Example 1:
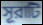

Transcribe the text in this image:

সূরাটি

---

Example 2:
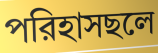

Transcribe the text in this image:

পরিহাসছলে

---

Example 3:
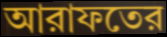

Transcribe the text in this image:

আরাফতের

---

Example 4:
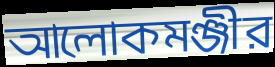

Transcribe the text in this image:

আলোকমঞ্জীর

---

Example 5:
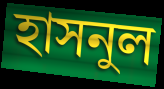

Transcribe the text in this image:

হাসনুল